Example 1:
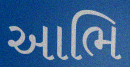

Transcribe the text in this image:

આભિ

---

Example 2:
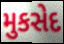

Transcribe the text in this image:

મુકસેદ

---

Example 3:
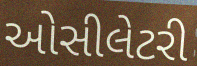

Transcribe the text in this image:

ઓસીલેટરી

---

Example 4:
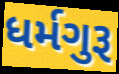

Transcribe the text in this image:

ધર્મગુરૂ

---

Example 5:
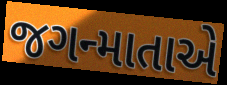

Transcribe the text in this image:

જગન્માતાએ